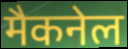
मैकनेल